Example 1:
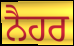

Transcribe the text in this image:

ਨੈਹਰ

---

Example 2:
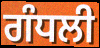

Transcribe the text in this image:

ਗੰਧਲੀ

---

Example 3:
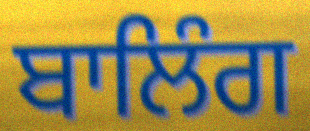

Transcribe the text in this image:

ਬਾਲਿੰਗ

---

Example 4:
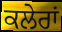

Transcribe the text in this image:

ਕਲੇਰਾਂ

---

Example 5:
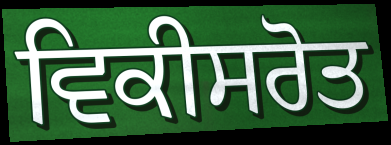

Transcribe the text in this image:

ਵਿਕੀਸਰੋਤ